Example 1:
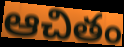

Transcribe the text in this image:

ఆచితం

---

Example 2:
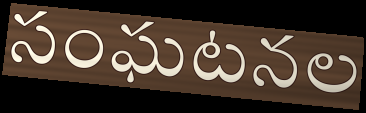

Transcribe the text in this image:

సంఘటనల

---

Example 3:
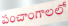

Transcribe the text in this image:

పంచాంగాలలో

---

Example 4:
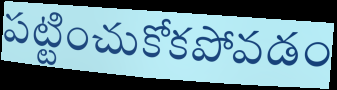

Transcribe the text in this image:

పట్టించుకోకపోవడం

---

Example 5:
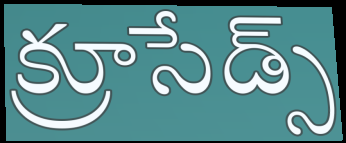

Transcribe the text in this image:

క్రూసేడ్స్